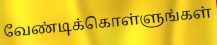
வேண்டிக்கொள்ளுங்கள்